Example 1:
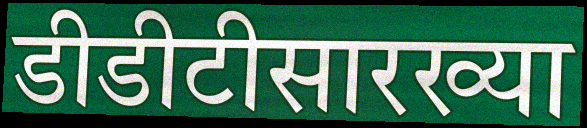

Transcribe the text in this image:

डीडीटीसारख्या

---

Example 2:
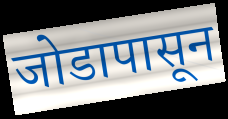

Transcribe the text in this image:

जोडापासून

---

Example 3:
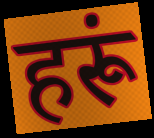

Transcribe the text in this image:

हरूं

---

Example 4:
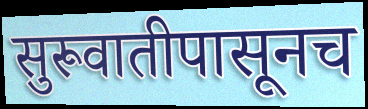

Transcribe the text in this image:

सुरूवातीपासूनच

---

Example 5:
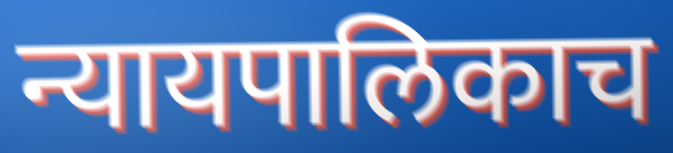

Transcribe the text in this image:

न्यायपालिकाच